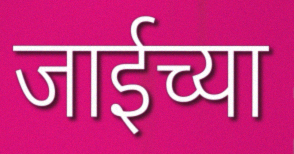
जाईच्या